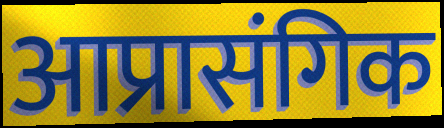
आप्रासंगिक